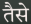
तैसे